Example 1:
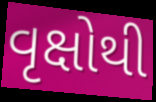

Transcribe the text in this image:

વૃક્ષોથી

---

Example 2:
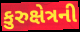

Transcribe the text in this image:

કુરુક્ષેત્રની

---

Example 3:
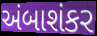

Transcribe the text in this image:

અંબાશંકર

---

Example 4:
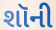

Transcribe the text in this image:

શૉની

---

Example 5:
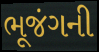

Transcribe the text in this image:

ભૂજંગની